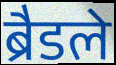
ब्रैडले